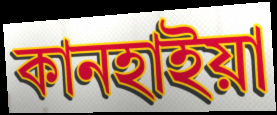
কানহাইয়া